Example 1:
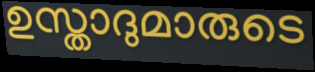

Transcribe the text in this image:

ഉസ്താദുമാരുടെ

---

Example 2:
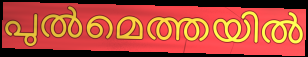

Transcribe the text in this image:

പുൽമെത്തയിൽ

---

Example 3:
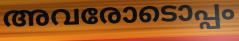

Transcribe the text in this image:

അവരോടൊപ്പം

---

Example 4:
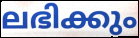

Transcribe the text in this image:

ലഭിക്കും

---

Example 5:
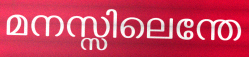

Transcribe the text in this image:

മനസ്സിലെന്തേ